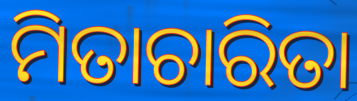
ମିତାଚାରିତା